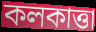
কলকাত্তা